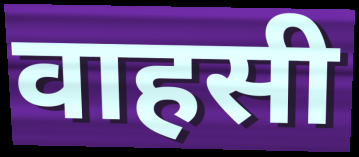
वाहसी